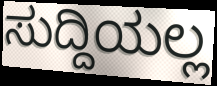
ಸುದ್ದಿಯಲ್ಲ